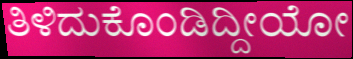
ತಿಳಿದುಕೊಂಡಿದ್ದೀಯೋ